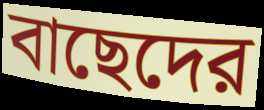
বাছেদের